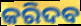
କରିଦବ